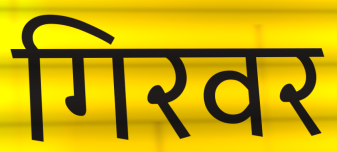
गिरवर